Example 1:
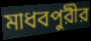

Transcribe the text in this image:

মাধবপুরীর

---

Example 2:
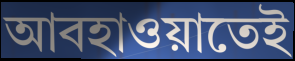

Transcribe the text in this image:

আবহাওয়াতেই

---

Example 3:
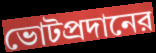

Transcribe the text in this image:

ভোটপ্রদানের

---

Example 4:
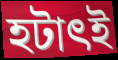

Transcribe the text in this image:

হটাৎই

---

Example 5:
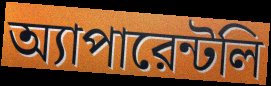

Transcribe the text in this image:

অ্যাপারেন্টলি